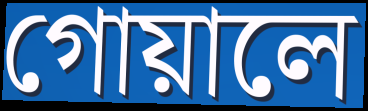
গোয়ালে